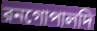
রনগোপালদি